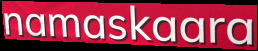
namaskaara